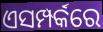
ଏସମ୍ପର୍କରେ